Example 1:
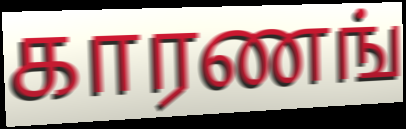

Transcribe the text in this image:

காரணங்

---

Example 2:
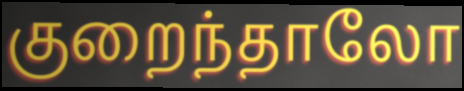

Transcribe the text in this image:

குறைந்தாலோ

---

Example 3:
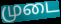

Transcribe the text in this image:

முடை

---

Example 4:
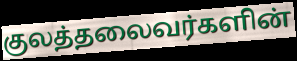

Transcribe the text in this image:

குலத்தலைவர்களின்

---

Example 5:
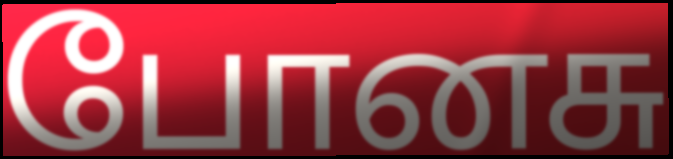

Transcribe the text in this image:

போனசு